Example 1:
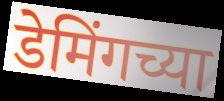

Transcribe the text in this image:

डेमिंगच्या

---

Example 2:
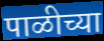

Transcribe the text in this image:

पाळीच्या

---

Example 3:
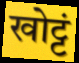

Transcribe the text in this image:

खोट्टं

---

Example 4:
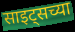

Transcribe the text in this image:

साइट्सच्या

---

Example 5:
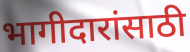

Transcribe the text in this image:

भागीदारांसाठी